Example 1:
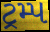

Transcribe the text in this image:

ટ્રમ્પ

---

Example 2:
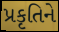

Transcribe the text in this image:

પ્રકૃતિને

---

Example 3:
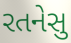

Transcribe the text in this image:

રતનેસુ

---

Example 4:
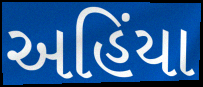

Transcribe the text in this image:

અહિંયા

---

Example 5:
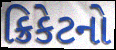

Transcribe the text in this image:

ક્રિકેટનો